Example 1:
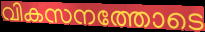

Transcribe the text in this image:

വികസനത്തോടെ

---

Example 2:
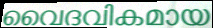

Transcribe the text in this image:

വൈദവികമായ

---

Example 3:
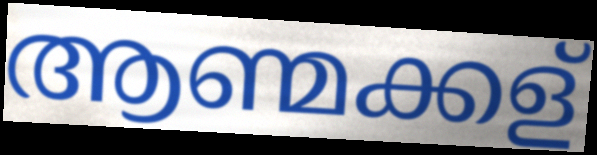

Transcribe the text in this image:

ആണ്മക്കള്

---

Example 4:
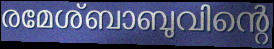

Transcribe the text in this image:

രമേശ്ബാബുവിന്റെ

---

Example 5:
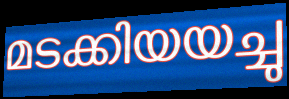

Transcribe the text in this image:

മടക്കിയയച്ചു